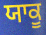
ਯਾਕੂ